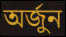
অর্জুন